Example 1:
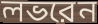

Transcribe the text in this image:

লভরেন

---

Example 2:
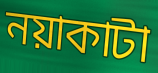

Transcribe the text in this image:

নয়াকাটা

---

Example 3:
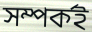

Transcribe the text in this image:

সম্পর্কই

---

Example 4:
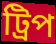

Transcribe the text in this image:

ট্রিপ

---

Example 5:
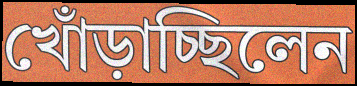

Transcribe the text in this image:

খোঁড়াচ্ছিলেন